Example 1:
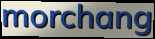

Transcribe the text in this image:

morchang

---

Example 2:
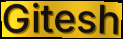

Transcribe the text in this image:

Gitesh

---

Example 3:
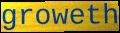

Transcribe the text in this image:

groweth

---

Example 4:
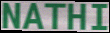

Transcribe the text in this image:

NATHI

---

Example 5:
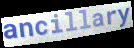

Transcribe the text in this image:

ancillary